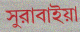
সুরাবাইয়া